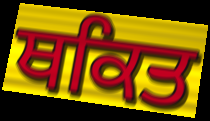
ਥਕਿਤ